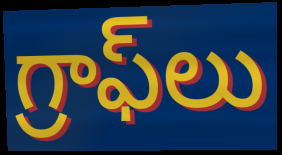
గ్రాఫ్‌లు